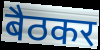
बैठकर